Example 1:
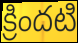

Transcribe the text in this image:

క్రిందటి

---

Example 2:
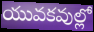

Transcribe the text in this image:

యువకవుల్లో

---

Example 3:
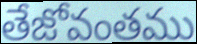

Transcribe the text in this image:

తేజోవంతము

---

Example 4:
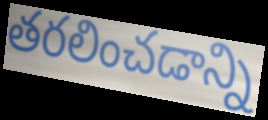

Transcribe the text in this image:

తరలించడాన్ని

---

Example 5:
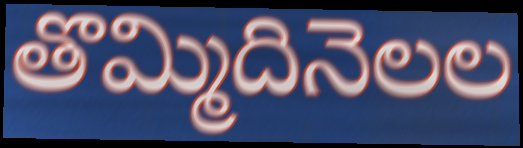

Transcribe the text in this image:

తొమ్మిదినెలల